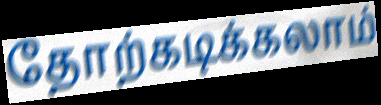
தோற்கடிக்கலாம்